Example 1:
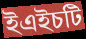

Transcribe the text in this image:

ইএইচটি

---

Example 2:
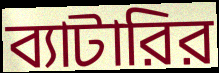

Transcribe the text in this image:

ব্যাটারির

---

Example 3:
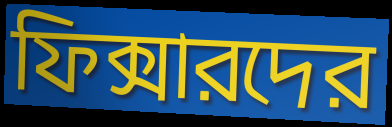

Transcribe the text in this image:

ফিক্সারদের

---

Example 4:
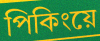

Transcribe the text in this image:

পিকিংয়ে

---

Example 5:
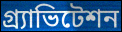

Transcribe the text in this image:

গ্র্যাভিটেশন